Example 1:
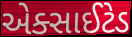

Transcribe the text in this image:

એક્સાઈટેડ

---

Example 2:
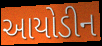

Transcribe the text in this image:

આયોડીન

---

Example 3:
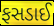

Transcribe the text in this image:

ફસડાઈ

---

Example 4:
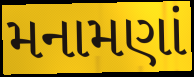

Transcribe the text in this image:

મનામણાં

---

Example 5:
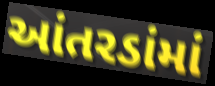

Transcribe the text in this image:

આંતરડાંમાં